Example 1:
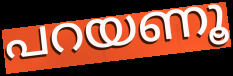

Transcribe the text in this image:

പറയണൂ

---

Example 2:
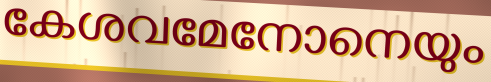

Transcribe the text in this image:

കേശവമേനോനെയും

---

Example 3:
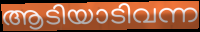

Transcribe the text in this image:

ആടിയാടിവന്ന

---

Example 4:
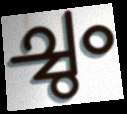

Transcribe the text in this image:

ച്ചും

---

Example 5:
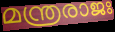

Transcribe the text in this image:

മന്ത്രരാജഃ